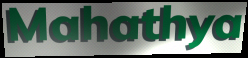
Mahathya